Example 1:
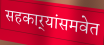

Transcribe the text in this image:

सहकार्यांसमवेत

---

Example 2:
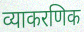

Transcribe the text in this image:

व्याकरणिक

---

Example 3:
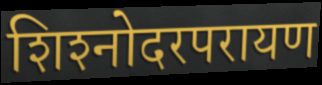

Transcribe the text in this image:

शिश्नोदरपरायण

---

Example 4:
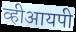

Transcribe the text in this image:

व्हीआयपी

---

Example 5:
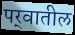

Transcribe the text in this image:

पर्वातील